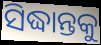
ସିଦ୍ଧାନ୍ତକୁ